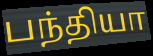
பந்தியா